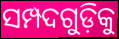
ସମ୍ପଦଗୁଡ଼ିକୁ